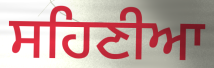
ਸਹਿਣੀਆ